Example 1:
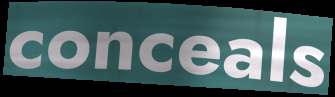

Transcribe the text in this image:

conceals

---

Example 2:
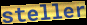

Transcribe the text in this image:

steller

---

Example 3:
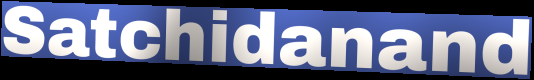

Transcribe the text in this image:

Satchidanand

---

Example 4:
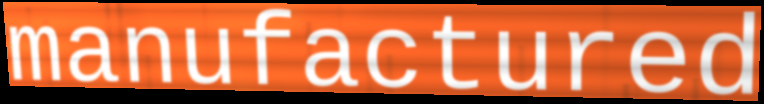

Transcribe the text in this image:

manufactured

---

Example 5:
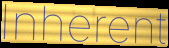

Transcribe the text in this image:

Inherent